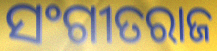
ସଂଗୀତରାଜ